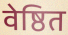
वेष्ठित